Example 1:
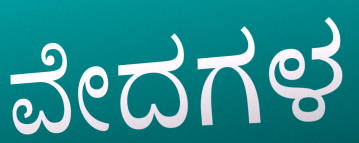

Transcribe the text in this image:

ವೇದಗಳ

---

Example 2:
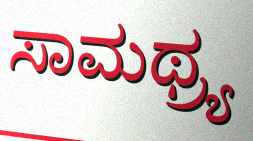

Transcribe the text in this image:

ಸಾಮಥ್ರ್ಯ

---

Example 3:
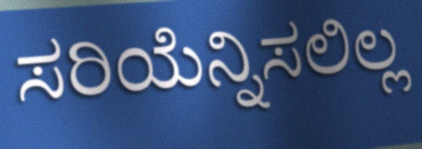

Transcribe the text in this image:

ಸರಿಯೆನ್ನಿಸಲಿಲ್ಲ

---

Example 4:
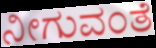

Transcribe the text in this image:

ನೀಗುವಂತೆ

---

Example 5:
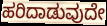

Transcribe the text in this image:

ಹರಿದಾಡುವುದೇ